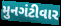
મુનગંટીવાર